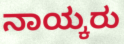
ನಾಯ್ಕರು